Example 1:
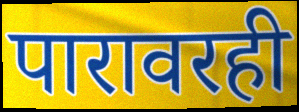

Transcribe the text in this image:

पारावरही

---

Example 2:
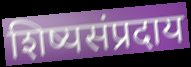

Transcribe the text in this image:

शिष्यसंप्रदाय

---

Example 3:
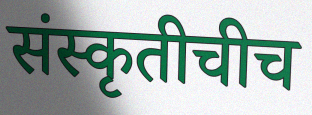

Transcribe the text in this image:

संस्कृतीचीच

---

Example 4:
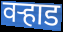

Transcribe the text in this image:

वऱ्हाड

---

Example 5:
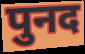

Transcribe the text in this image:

पुनद